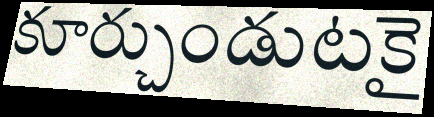
కూర్చుండుటకై